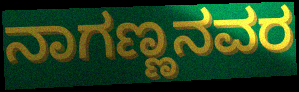
ನಾಗಣ್ಣನವರ